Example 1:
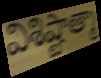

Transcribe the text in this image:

విశిష్టాత్మా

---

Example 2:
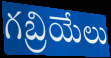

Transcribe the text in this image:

గబ్రియేలు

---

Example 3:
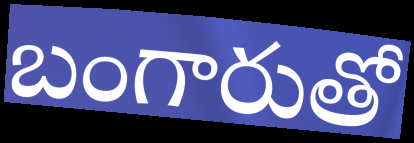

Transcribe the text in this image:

బంగారుతో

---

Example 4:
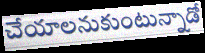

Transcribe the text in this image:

చేయాలనుకుంటున్నాడో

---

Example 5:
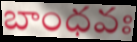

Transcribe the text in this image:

బాంధవః